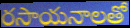
రసాయనాలతో